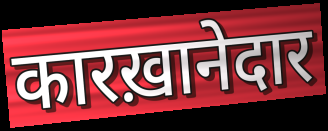
कारख़ानेदार